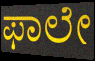
ಫಾಲೇ